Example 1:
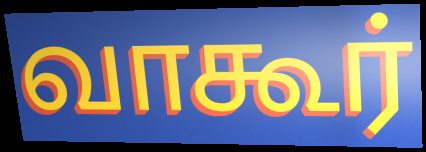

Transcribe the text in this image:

வாகூர்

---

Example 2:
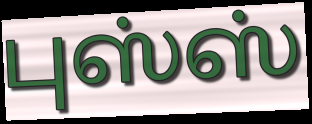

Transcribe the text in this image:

புஸ்ஸ்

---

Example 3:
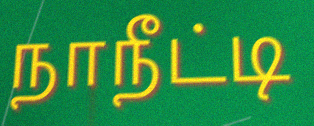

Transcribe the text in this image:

நாநீட்டி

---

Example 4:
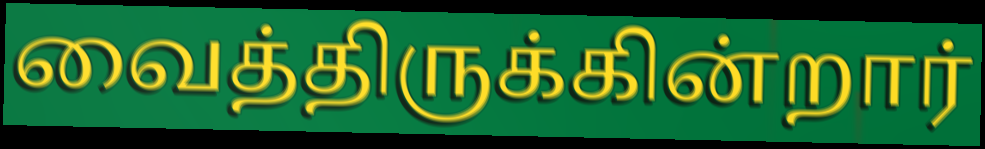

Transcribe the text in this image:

வைத்திருக்கின்றார்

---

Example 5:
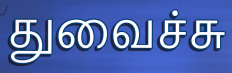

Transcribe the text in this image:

துவைச்சு